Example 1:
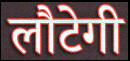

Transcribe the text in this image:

लौटेगी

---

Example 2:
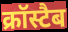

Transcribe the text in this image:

क्रॉस्टैब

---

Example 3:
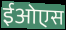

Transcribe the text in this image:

ईओएस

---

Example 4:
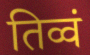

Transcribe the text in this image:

तिव्वं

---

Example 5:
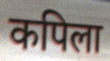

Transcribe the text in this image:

कपिला